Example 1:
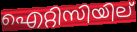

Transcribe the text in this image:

ഐറ്റിസിയില്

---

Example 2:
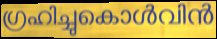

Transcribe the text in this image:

ഗ്രഹിച്ചുകൊൾവിൻ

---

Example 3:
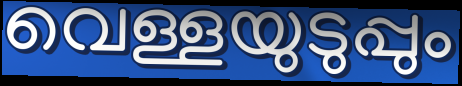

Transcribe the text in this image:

വെള്ളയുടുപ്പും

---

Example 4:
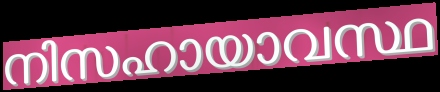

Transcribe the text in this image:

നിസഹായാവസ്ഥ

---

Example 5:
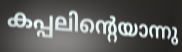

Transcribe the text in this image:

കപ്പലിന്റെയാന്നു